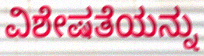
ವಿಶೇಷತೆಯನ್ನು